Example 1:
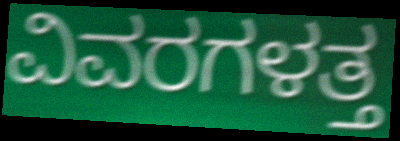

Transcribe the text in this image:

ವಿವರಗಳತ್ತ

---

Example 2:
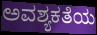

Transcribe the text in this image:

ಅವಶ್ಯಕತೆಯ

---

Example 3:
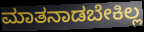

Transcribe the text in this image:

ಮಾತನಾಡಬೇಕಿಲ್ಲ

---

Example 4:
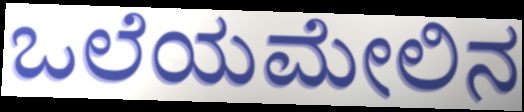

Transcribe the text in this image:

ಒಲೆಯಮೇಲಿನ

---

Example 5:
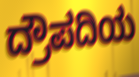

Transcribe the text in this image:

ದ್ರೌಪದಿಯ